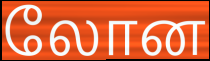
லோன